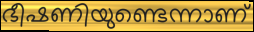
ഭീഷണിയുണ്ടെന്നാണ്